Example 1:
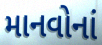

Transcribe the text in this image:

માનવોનાં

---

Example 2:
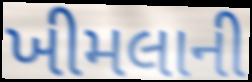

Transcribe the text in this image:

ખીમલાની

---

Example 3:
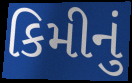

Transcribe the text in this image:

કિમીનું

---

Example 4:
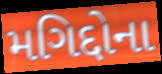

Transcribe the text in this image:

મગિદ્દોના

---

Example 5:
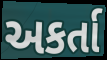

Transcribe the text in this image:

અકર્તા